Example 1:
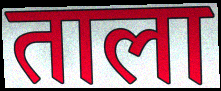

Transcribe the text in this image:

ताला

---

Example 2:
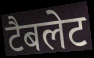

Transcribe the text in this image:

टैबलेट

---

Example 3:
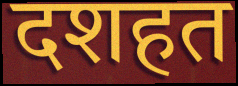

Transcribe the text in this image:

दशहत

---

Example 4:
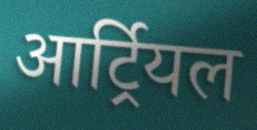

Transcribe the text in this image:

आर्ट्रियल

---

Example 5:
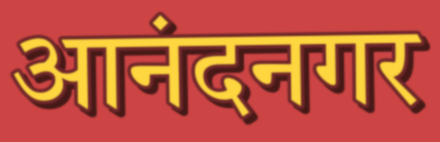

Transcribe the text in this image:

आनंदनगर